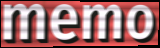
memo